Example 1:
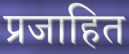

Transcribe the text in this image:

प्रजाहित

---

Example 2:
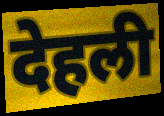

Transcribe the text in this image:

देहली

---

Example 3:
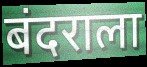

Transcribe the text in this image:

बंदराला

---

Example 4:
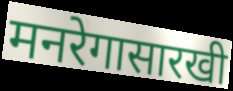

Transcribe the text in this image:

मनरेगासारखी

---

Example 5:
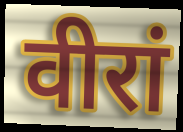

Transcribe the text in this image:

वीरां